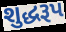
શુદ્ધરૂપ